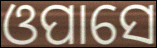
ଓପାସେ